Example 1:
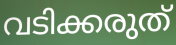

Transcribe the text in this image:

വടിക്കരുത്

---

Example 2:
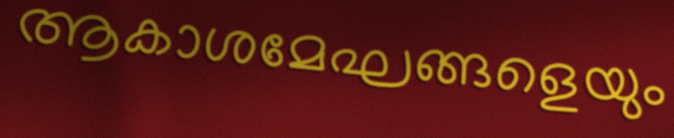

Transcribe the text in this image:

ആകാശമേഘങ്ങളെയും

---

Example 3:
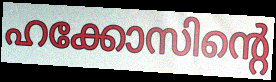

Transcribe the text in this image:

ഹക്കോസിന്റെ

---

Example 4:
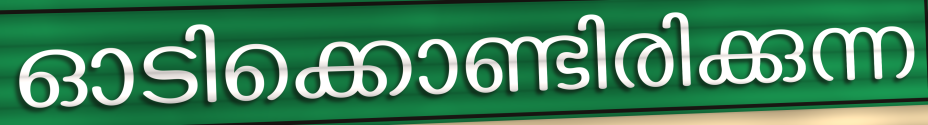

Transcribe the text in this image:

ഓടിക്കൊണ്ടിരിക്കുന്ന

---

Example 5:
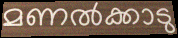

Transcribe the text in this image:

മണൽക്കാടു